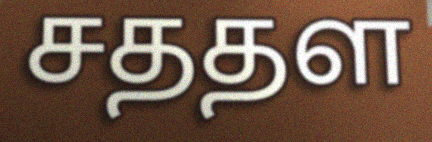
சததள